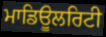
ਮਾਡਿਊਲਰਿਟੀ